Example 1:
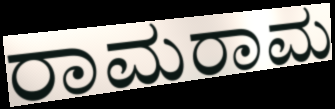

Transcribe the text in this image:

ರಾಮರಾಮ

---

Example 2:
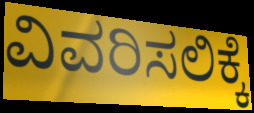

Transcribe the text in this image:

ವಿವರಿಸಲಿಕ್ಕೆ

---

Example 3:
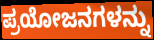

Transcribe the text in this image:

ಪ್ರಯೋಜನಗಳನ್ನು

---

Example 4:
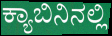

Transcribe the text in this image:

ಕ್ಯಾಬಿನಿನಲ್ಲಿ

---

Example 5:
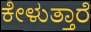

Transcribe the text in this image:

ಕೇಳುತ್ತಾರೆ